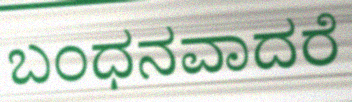
ಬಂಧನವಾದರೆ